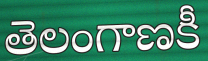
తెలంగాణకీ